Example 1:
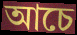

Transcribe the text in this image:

আচে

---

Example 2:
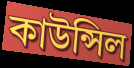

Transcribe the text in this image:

কাউন্সিল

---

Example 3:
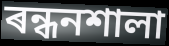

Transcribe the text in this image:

ৰন্ধনশালা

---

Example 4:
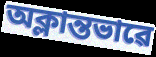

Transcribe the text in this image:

অক্লান্তভাৱে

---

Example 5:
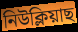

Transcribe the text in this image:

নিউক্লিয়াছ